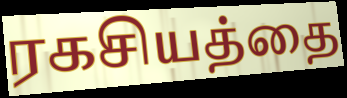
ரகசியத்தை